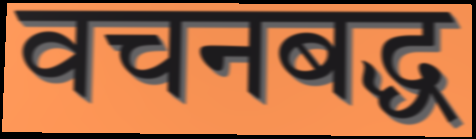
वचनबद्ध